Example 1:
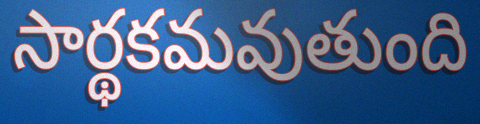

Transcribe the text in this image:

సార్థకమవుతుంది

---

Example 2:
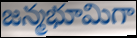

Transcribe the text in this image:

జన్మభూమిగా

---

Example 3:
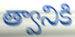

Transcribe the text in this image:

త్వానికి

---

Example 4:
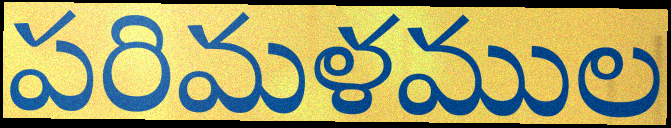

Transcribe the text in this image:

పరిమళముల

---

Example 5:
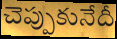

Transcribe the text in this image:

చెప్పుకునేదీ